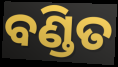
ବଣ୍ଡିତ